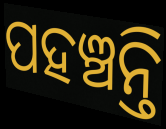
ପହଞ୍ଚନ୍ତି